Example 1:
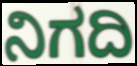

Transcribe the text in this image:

ನಿಗದಿ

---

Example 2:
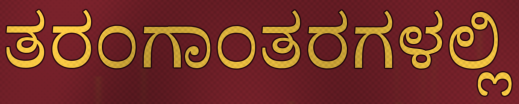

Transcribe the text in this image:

ತರಂಗಾಂತರಗಳಲ್ಲಿ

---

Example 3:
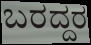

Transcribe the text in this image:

ಬರದ್ದರ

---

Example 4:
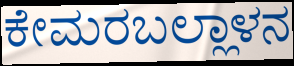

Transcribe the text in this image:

ಕೇಮರಬಲ್ಲಾಳನ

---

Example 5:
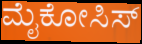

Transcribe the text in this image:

ಮೈಕೋಸಿಸ್